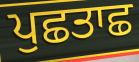
ਪੁਛਤਾਛ